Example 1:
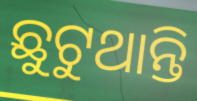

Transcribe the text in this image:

ଛୁଟୁଥାନ୍ତି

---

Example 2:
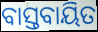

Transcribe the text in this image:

ବାସ୍ତବାୟିତ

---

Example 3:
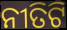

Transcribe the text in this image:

ନୀତିଟି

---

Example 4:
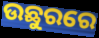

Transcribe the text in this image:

ଉଛୁରରେ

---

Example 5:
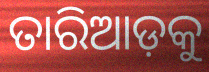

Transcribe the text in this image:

ତାରିଆଡ଼କୁ